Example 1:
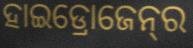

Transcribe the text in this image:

ହାଇଡ୍ରୋଜେନ୍‌ର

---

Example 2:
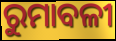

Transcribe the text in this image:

ରୁମାବଳୀ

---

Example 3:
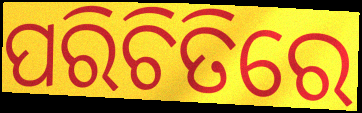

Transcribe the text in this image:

ପରିଚିତିରେ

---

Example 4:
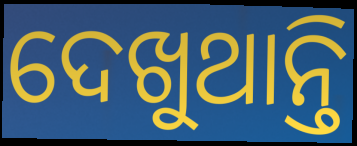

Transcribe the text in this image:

ଦେଖୁଥାନ୍ତି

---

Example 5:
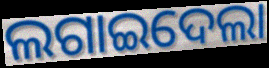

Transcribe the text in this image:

ଲଗାଇଦେଲା